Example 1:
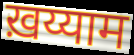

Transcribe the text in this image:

ख़य्याम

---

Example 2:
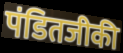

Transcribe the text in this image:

पंडितजीकी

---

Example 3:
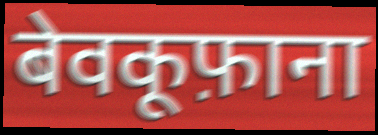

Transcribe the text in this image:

बेवकूफ़ाना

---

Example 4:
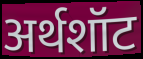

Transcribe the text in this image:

अर्थशॉट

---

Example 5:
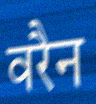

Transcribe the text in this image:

वरैन